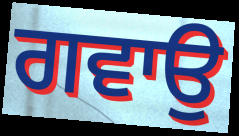
ਗਵਾਉ